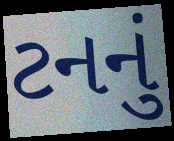
ટનનું